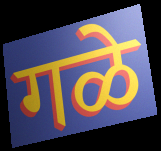
गळे